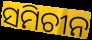
ସମିଚୀନ